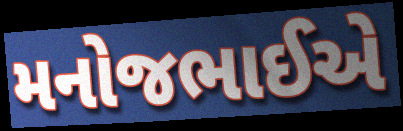
મનોજભાઈએ